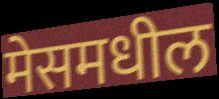
मेसमधील